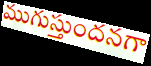
ముగుస్తుందనగా